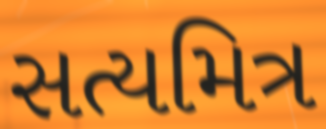
સત્યમિત્ર